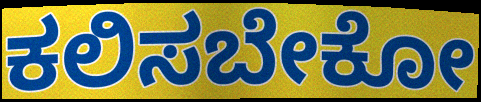
ಕಲಿಸಬೇಕೋ